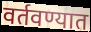
वर्तवण्यात